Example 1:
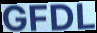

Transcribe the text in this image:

GFDL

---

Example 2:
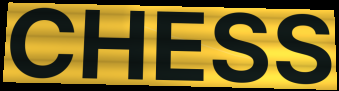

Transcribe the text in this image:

CHESS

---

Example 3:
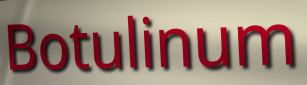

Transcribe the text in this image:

Botulinum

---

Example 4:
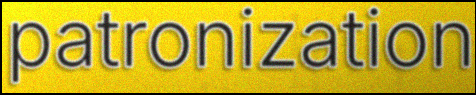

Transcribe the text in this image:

patronization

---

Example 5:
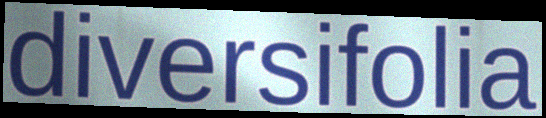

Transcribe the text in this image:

diversifolia